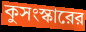
কুসংস্কারের